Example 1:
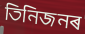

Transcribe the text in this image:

তিনিজনৰ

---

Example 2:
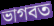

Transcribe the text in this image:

ভাগবত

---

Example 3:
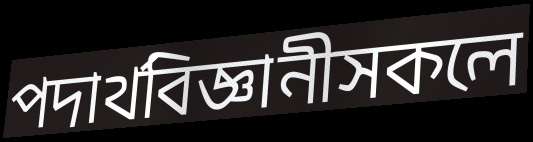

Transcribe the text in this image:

পদাৰ্থবিজ্ঞানীসকলে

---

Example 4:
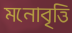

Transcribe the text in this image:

মনোবৃত্তি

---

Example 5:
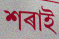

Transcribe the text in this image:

শৰাই